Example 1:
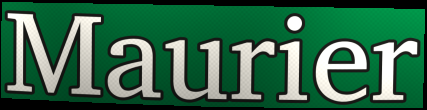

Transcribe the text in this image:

Maurier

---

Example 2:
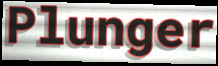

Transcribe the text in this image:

Plunger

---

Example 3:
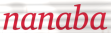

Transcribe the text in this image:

nanaba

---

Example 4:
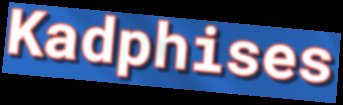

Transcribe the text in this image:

Kadphises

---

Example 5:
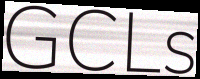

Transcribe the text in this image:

GCLs